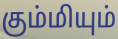
கும்மியும்